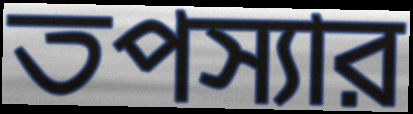
তপস্যার